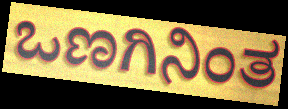
ಒಣಗಿನಿಂತ